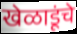
खेळाडूंचे